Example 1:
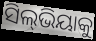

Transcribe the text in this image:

ସିଲ୍‍ଭିୟାକୁ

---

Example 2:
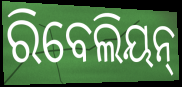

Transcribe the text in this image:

ରିବେଲିୟନ୍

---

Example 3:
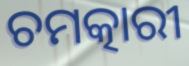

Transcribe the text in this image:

ଚମତ୍କାରୀ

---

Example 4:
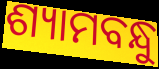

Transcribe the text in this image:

ଶ୍ୟାମବନ୍ଧୁ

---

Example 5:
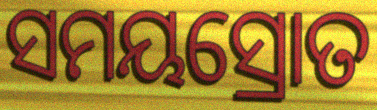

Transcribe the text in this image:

ସମୟସ୍ରୋତ